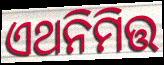
ଏଥନିମିତ୍ତ